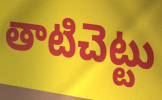
తాటిచెట్టు